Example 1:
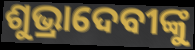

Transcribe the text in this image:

ଶୁଭ୍ରାଦେବୀଙ୍କୁ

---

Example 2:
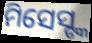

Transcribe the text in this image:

ମିସେସ୍ଙ୍କ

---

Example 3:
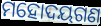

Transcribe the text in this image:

ମହୋଦୟଗଣ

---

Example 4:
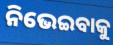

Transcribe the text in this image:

ନିଭେଇବାକୁ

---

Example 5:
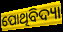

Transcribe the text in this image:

ପୋଥିବିଦ୍ୟା